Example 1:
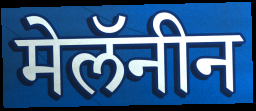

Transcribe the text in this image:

मेलॅनीन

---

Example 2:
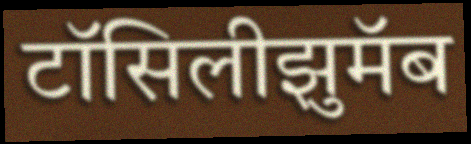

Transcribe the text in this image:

टॉसिलीझुमॅब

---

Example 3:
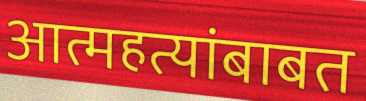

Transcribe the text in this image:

आत्महत्यांबाबत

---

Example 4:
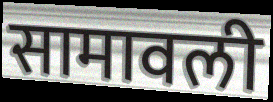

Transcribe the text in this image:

सामावली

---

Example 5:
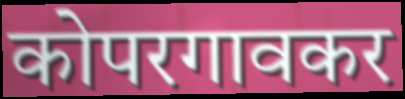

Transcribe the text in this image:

कोपरगावकर